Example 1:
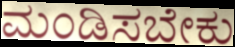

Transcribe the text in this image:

ಮಂಡಿಸಬೇಕು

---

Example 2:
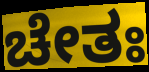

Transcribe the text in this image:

ಚೇತಃ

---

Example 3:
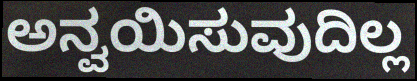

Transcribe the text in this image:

ಅನ್ವಯಿಸುವುದಿಲ್ಲ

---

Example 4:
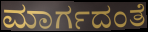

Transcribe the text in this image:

ಮಾರ್ಗದಂತೆ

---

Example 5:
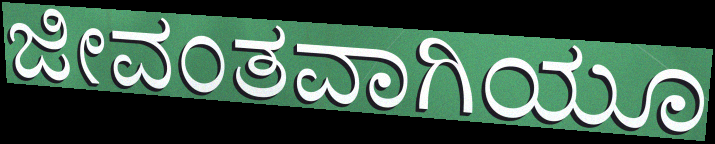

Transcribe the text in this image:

ಜೀವಂತವಾಗಿಯೂ